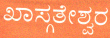
ಖಾಸ್ಗತೇಶ್ವರ